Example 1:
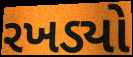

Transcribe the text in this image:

રખડ્યો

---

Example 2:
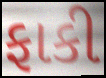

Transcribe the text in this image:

ફાકી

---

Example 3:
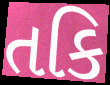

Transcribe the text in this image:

તકિ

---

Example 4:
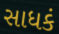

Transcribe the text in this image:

સાધકં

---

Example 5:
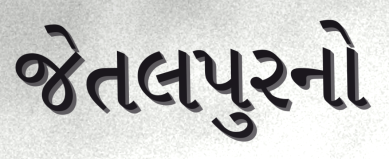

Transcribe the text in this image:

જેતલપુરનો